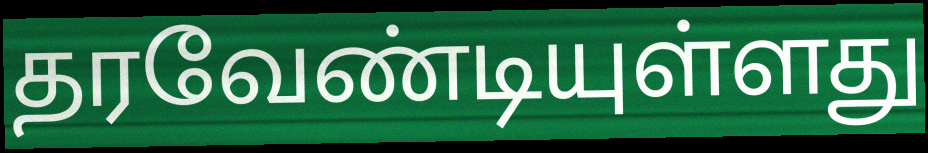
தரவேண்டியுள்ளது